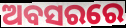
ଅବସରରେ